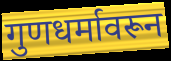
गुणधर्मावरून